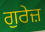
ਗੁਰੇਜ਼